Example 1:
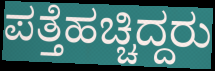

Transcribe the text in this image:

ಪತ್ತೆಹಚ್ಚಿದ್ದರು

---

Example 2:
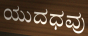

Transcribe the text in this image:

ಯುದಧವು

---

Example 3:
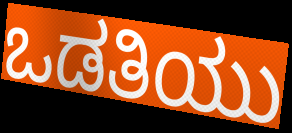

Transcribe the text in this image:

ಒಡತಿಯು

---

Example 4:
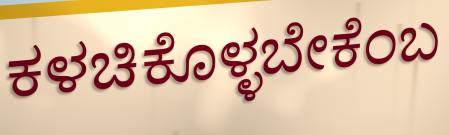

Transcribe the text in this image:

ಕಳಚಿಕೊಳ್ಳಬೇಕೆಂಬ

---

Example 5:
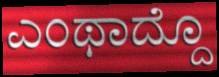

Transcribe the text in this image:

ಎಂಥಾದ್ದೊ